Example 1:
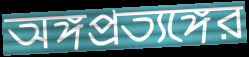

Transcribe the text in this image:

অঙ্গপ্রত্যঙ্গের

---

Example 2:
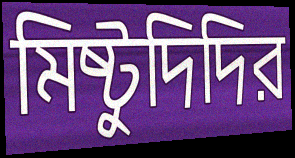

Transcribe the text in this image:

মিষ্টুদিদির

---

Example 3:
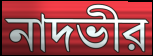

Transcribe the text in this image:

নাদভীর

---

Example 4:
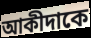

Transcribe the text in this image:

আকীদাকে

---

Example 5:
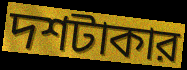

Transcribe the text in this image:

দশটাকার